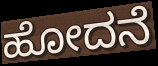
ಹೋದನೆ